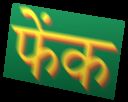
फेंक